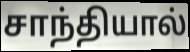
சாந்தியால்